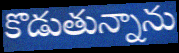
కొడుతున్నాను